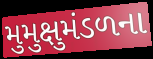
મુમુક્ષુમંડળના